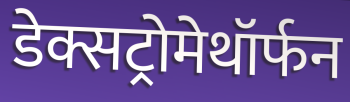
डेक्सट्रोमेथॉर्फन